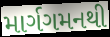
માર્ગગમનથી